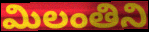
మిలంతిని